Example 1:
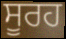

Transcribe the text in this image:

ਸੂਰਹ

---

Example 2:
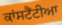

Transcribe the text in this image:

ਕਾਂਸਟੈਂਟੀਆ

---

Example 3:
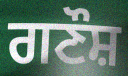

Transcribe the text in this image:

ਗਣੌਸ਼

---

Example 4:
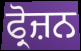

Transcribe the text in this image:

ਫ੍ਰੋਜ਼ਨ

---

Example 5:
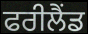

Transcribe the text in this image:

ਫਰੀਲੈਂਡ